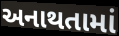
અનાથતામાં